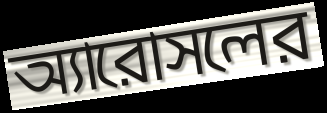
অ্যারোসলের